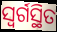
ସ୍ୱର୍ଗସ୍ଥିତ